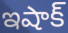
ఇషాక్